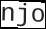
njo